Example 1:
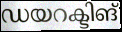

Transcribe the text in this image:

ഡയറക്ടിങ്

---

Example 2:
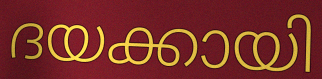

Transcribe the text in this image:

ദയക്കായി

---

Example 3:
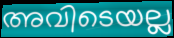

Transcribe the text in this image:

അവിടെയല്ല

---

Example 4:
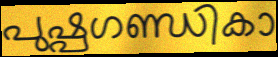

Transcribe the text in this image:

പുഷ്പഗണ്ഡികാ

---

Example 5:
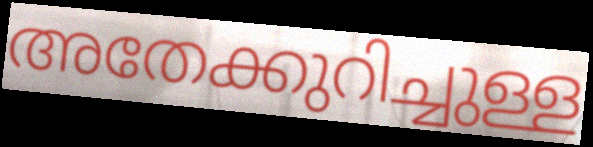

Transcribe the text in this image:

അതേക്കുറിച്ചുള്ള